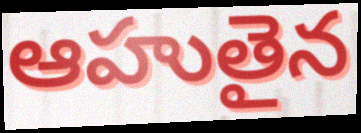
ఆహుతైన